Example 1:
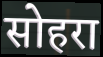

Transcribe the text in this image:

सोहरा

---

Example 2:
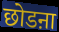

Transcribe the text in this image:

छोडऩा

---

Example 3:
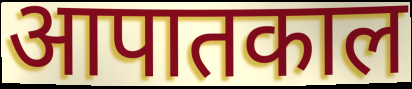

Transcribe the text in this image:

आपातकाल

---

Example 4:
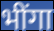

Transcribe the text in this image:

भींगा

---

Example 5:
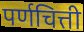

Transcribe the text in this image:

पर्णचित्ती